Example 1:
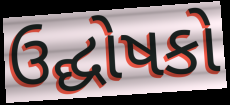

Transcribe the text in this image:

ઉદ્ઘોષકો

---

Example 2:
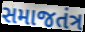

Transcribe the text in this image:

સમાજતંત્ર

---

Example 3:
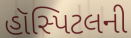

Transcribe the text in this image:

હૉસ્પિટલની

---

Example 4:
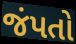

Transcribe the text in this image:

જંપતો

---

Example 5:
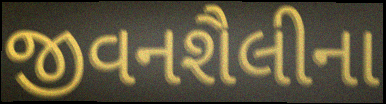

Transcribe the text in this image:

જીવનશૈલીના